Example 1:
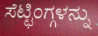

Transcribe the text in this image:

ಸೆಟ್ಟಿಂಗ್ಗಳನ್ನು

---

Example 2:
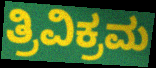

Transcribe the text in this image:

ತ್ರಿವಿಕ್ರಮ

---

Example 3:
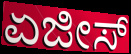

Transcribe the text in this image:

ಏಜೀಸ್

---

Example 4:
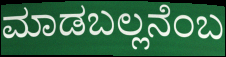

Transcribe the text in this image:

ಮಾಡಬಲ್ಲನೆಂಬ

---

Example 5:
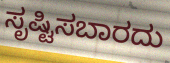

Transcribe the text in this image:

ಸೃಷ್ಟಿಸಬಾರದು